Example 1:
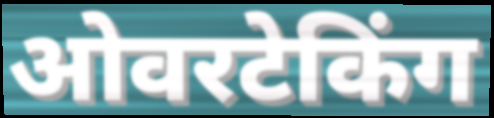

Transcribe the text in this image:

ओवरटेकिंग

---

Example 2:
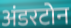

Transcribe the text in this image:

अंडरटोन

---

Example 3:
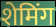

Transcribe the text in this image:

शेमिंग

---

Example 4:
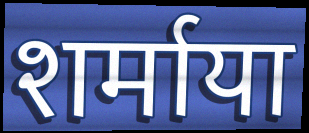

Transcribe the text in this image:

शर्माया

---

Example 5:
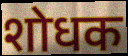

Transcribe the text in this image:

शोधक